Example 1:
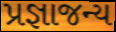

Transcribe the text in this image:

પ્રજ્ઞાજન્ય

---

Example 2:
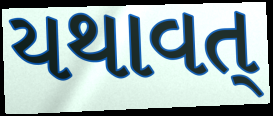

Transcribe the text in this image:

યથાવત્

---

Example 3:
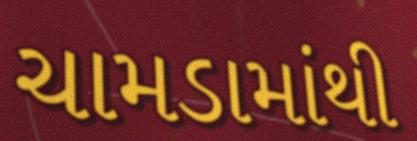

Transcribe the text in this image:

ચામડામાંથી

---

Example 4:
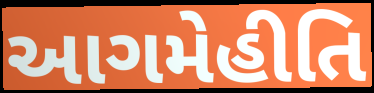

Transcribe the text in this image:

આગમેહીતિ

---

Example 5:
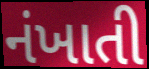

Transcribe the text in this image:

નંખાતી